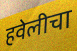
हवेलीचा